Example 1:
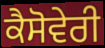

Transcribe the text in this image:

ਕੈਸੋਵੇਰੀ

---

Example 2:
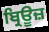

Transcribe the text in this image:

ਬ੍ਰਿਊਜ਼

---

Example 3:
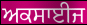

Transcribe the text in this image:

ਅਕਸਾਈਜ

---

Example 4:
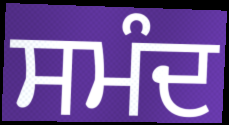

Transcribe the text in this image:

ਸਮੰਦ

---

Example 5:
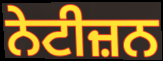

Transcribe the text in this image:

ਨੇਟੀਜ਼ਨ